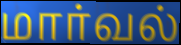
மார்வல்